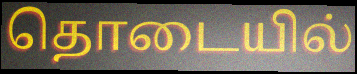
தொடையில்